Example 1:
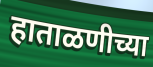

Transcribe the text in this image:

हाताळणीच्या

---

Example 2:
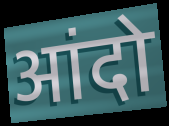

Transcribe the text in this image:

आंदो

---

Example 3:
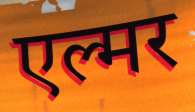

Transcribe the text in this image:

एल्मर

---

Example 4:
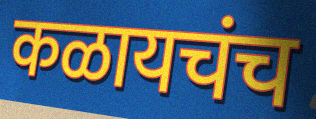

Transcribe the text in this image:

कळायचंच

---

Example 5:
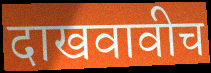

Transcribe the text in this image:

दाखवावीच